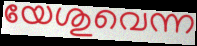
യേശുവെന്ന